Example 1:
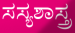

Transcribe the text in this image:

ಸಸ್ಯಶಾಸ್ತ್ರ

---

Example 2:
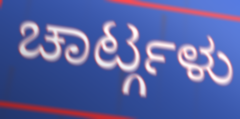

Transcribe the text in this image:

ಚಾರ್ಟ್ಗಳು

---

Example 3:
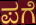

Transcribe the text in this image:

ಪಗೆ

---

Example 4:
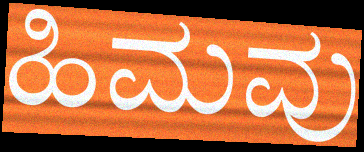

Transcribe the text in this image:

ಹಿಮವು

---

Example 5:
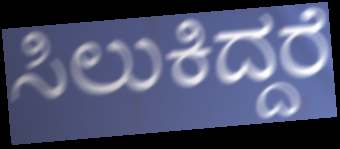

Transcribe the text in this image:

ಸಿಲುಕಿದ್ದರೆ